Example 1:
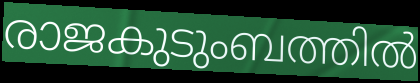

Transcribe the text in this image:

രാജകുടുംബത്തിൽ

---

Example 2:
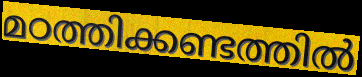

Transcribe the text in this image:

മഠത്തിക്കണ്ടത്തിൽ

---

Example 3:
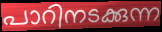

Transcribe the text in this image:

പാറിനടക്കുന്ന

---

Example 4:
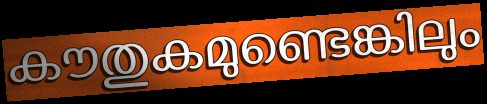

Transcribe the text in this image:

കൗതുകമുണ്ടെങ്കിലും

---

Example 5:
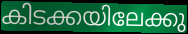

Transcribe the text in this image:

കിടക്കയിലേക്കു